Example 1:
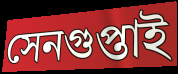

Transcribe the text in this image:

সেনগুপ্তাই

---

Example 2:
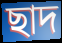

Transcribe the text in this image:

ছাদ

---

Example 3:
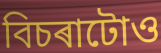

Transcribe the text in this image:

বিচৰাটোও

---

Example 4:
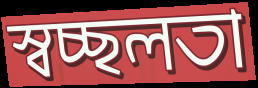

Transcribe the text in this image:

স্বচ্ছলতা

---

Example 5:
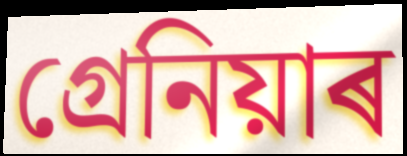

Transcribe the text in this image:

গ্ৰেনিয়াৰ